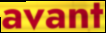
avant